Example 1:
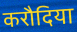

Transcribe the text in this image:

करौदिया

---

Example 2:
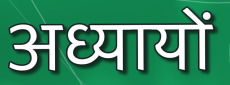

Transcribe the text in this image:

अध्यायों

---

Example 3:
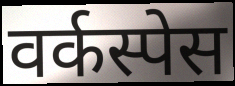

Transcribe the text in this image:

वर्कस्पेस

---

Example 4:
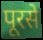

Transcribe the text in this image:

पूरसे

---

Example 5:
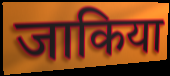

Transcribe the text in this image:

जाकिया